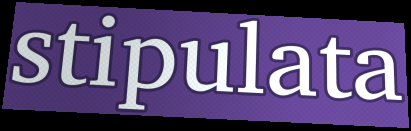
stipulata